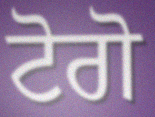
ਟੋਗੋ